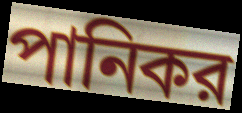
পানিকর